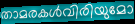
താമരകൾവിരിയുമോ